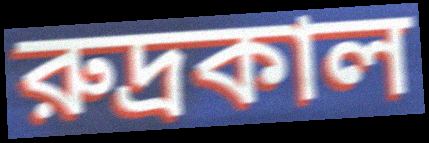
রুদ্রকাল